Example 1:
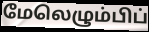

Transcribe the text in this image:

மேலெழும்பிப்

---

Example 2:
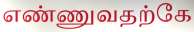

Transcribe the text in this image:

எண்ணுவதற்கே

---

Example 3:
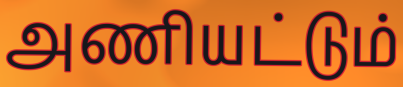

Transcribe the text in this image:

அணியட்டும்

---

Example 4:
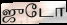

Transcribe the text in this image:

ஜுடோ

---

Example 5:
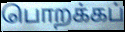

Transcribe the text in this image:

பொறக்கப்